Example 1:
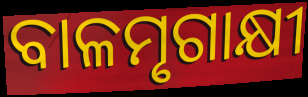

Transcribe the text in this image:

ବାଳମୃଗାକ୍ଷୀ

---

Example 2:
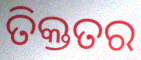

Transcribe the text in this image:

ତିକ୍ତତର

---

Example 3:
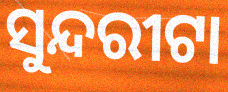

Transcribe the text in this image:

ସୁନ୍ଦରୀଟା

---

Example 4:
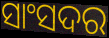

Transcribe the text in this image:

ସାଂସଦର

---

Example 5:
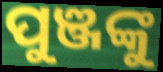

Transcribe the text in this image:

ପୁଞ୍ଜଙ୍କୁ